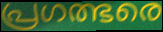
പ്രഗത്ഭരെ